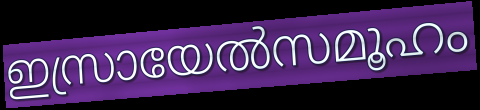
ഇസ്രായേൽസമൂഹം